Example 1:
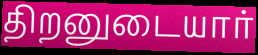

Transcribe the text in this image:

திறனுடையார்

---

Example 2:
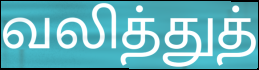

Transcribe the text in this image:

வலித்துத்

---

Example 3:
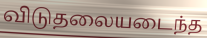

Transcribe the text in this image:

விடுதலையடைந்த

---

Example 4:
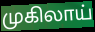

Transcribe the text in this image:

முகிலாய்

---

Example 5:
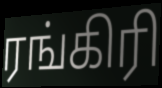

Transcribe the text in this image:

ரங்கிரி